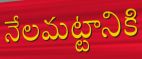
నేలమట్టానికి